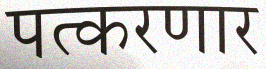
पत्करणार